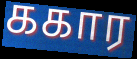
ககார